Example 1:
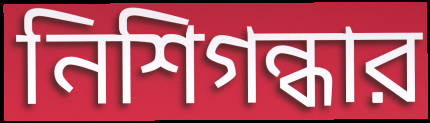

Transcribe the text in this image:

নিশিগন্ধার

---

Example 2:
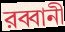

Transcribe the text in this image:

রব্বানী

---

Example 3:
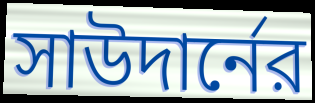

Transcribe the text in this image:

সাউদার্নের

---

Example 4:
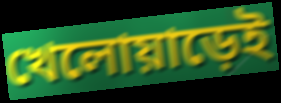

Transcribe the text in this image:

খেলোয়াড়েই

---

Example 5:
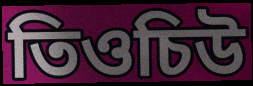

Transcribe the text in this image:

তিওচিউ